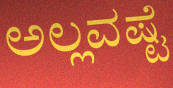
ಅಲ್ಲವಷ್ಟೆ